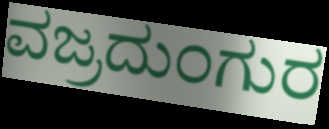
ವಜ್ರದುಂಗುರ